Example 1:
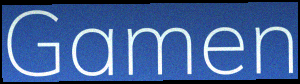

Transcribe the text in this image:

Gamen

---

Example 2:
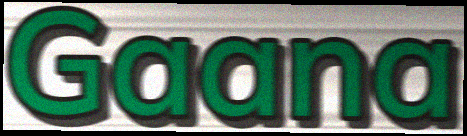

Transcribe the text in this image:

Gaana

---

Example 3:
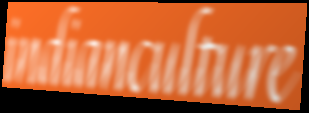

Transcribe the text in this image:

indianculture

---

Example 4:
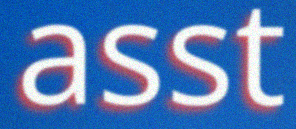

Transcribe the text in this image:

asst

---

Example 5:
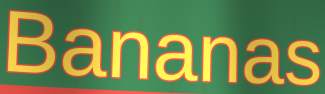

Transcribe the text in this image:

Bananas